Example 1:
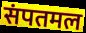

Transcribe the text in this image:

संपतमल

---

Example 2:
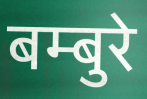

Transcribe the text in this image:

बम्बुरे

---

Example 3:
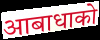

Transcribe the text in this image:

आबाधाको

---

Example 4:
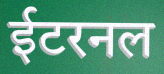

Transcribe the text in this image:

ईटरनल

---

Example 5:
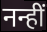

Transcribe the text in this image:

नन्हीं